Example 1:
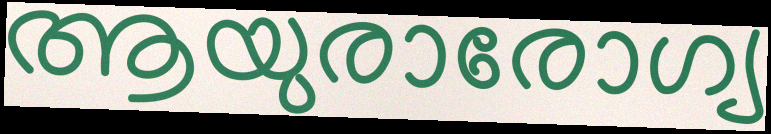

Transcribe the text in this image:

ആയുരാരോഗ്യ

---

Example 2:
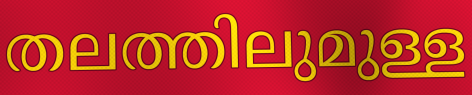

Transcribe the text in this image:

തലത്തിലുമുള്ള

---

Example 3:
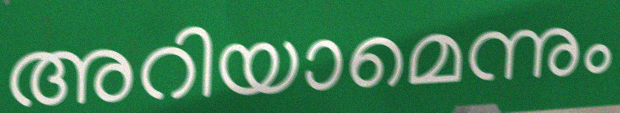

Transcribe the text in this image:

അറിയാമെന്നും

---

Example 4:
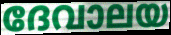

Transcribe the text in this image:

ദേവാലയ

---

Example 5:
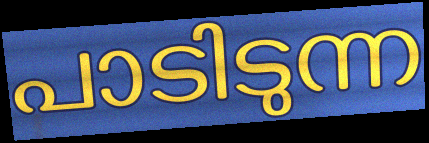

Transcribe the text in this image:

പാടിടുന്ന